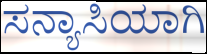
ಸನ್ಯಾಸಿಯಾಗಿ